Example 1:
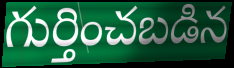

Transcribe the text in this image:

గుర్తించబడిన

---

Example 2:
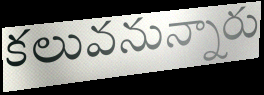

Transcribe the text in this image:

కలువనున్నారు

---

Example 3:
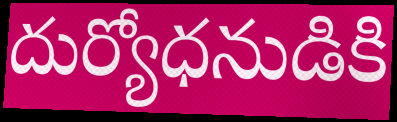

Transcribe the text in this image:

దుర్యోధనుడికి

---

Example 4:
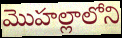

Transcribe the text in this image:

మొహల్లాలోని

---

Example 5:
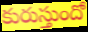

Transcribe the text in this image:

కురుస్తుందో